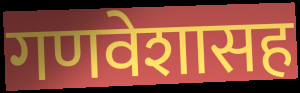
गणवेशासह